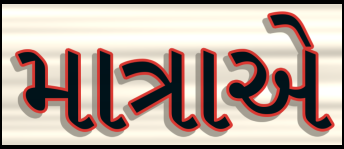
માત્રાએ